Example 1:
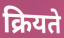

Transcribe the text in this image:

क्रियते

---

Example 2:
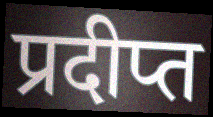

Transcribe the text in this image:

प्रदीप्त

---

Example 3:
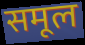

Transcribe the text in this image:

समूल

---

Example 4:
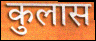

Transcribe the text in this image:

कुलास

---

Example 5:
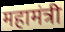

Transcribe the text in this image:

महामंत्री